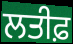
ਲਤੀਫ਼